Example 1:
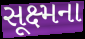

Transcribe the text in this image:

સૂક્ષ્મના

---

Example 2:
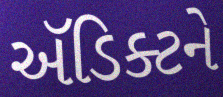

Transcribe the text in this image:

ઍડિક્ટને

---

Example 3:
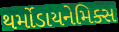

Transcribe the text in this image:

થર્મોડાયનેમિક્સ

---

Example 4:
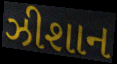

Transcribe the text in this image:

ઝીશાન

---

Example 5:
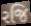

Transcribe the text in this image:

રજિ